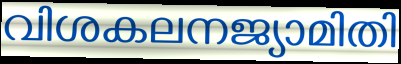
വിശകലനജ്യാമിതി